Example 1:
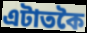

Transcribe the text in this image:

এটাতকৈ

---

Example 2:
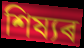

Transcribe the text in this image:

শিষ্যৰ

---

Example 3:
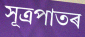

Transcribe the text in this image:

সূত্ৰপাতৰ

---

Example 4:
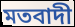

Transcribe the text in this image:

মতবাদী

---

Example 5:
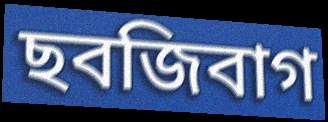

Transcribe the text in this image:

ছবজিবাগ